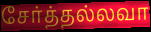
சேர்த்தல்லவா